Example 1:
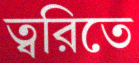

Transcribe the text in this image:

ত্বরিতে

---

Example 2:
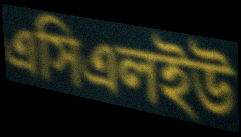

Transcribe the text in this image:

এসিএলইউ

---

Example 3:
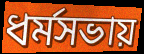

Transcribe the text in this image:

ধর্মসভায়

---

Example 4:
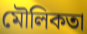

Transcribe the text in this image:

মৌলিকতা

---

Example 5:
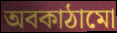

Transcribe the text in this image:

অবকাঠামো